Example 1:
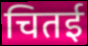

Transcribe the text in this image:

चितई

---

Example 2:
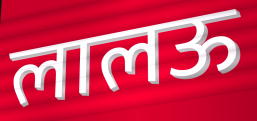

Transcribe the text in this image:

लालऊ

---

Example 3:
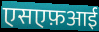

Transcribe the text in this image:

एसएफ़आई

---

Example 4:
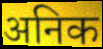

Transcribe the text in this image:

अनिक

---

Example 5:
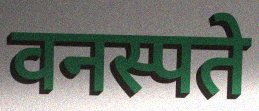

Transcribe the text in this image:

वनस्पते